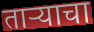
ताऱ्याचा